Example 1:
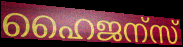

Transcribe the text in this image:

ഹൈജന്സ്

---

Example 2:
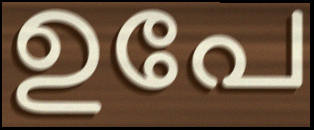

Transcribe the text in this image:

ഉപേ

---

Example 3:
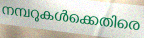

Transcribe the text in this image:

നമ്പറുകൾക്കെതിരെ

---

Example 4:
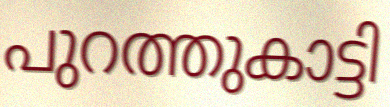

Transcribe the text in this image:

പുറത്തുകാട്ടി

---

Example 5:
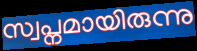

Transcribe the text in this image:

സ്വപ്നമായിരുന്നു